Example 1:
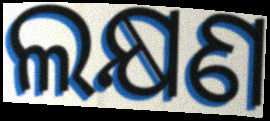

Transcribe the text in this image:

ଲକ୍ଷଣ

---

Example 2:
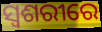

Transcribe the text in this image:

ସ୍ୱଶରୀରେ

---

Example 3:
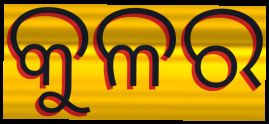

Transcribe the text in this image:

କୁଳର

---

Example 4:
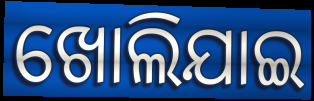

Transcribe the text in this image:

ଖୋଲିଯାଇ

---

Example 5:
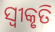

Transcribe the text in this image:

ସ୍ବୀକୃତି